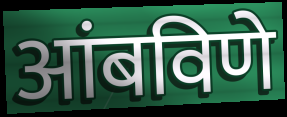
आंबविणे